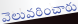
వెలువరించారు